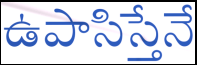
ఉపాసిస్తేనే